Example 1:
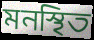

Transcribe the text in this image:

মনস্থিত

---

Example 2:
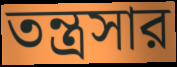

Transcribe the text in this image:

তন্ত্রসার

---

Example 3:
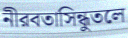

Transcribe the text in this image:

নীরবতাসিন্ধুতলে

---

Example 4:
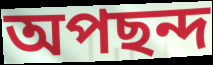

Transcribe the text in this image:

অপছন্দ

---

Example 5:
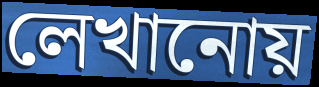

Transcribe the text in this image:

লেখানোয়